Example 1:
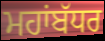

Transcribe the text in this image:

ਮਹਾਂਬੱਧਰ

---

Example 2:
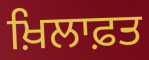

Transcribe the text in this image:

ਖ਼ਿਲਾਫ਼ਤ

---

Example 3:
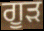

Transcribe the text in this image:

ਗੂੜ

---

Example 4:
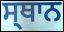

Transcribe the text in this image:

ਸ੍ਥਾਨ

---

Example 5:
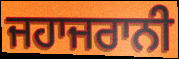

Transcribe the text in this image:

ਜਹਾਜਰਾਨੀ